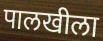
पालखीला